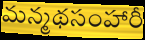
మన్మథసంహారీ